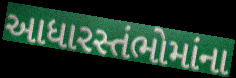
આધારસ્તંભોમાંના